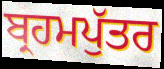
ਬ੍ਰਹਮਪੁੱਤਰ